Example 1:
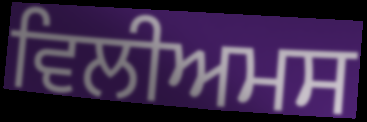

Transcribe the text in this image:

ਵਿਲੀਅਮਸ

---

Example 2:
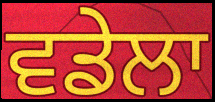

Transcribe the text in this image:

ਵਡੇਲਾ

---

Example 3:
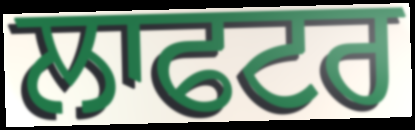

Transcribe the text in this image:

ਲਾਫਟਰ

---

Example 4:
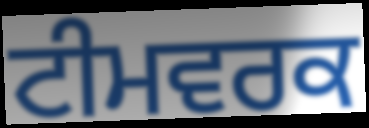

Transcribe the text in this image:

ਟੀਮਵਰਕ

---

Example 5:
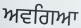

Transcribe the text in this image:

ਅਵਗਿਆ